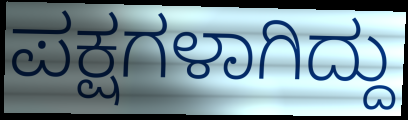
ಪಕ್ಷಗಳಾಗಿದ್ದು